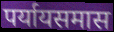
पर्यायसमास